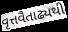
વૃત્તવૈતાઢ્યથી